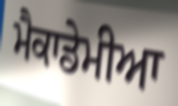
ਮੈਕਾਡੇਮੀਆ